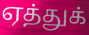
ஏத்துக்